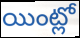
యింట్లో